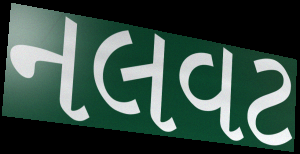
નલવટ